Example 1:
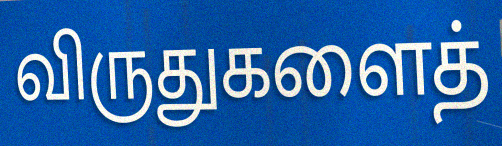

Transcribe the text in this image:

விருதுகளைத்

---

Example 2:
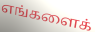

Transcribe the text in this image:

எங்களைக்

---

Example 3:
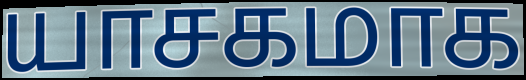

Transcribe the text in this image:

யாசகமாக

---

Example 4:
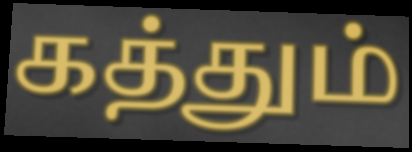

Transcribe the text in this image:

கத்தும்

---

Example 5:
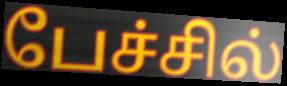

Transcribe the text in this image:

பேச்சில்